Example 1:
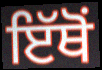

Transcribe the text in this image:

ਇੱਥੋਂ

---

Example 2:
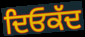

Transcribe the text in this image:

ਦਿਓਕੱਦ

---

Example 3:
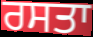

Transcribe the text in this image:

ਰਸਤਾ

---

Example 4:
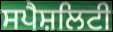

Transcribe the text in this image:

ਸਪੈਸ਼ਲਿਟੀ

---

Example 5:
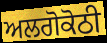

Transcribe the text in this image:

ਅਲਗੋਕੋਠੀ